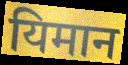
यिमान